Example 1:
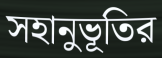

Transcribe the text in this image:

সহানুভূতির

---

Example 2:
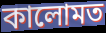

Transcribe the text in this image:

কালোমত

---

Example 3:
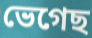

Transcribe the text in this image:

ভেগেছ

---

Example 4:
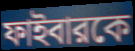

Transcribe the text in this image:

ফাইবারকে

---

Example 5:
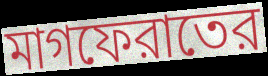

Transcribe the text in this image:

মাগফেরাতের